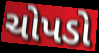
ચોપડો